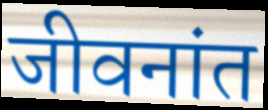
जीवनांत